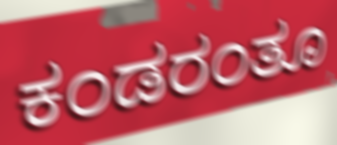
ಕಂಡರಂತೂ